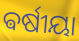
ଵର୍ଷୀୟା